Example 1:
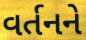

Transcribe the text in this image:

વર્તનને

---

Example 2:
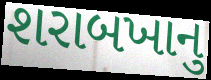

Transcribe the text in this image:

શરાબખાનુ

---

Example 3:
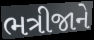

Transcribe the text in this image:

ભત્રીજાને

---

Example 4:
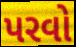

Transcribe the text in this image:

પરવો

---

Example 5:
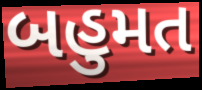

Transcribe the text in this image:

બહુમત